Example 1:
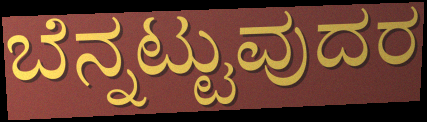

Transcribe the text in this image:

ಬೆನ್ನಟ್ಟುವುದರ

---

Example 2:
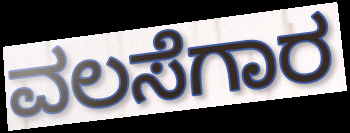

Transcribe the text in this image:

ವಲಸೆಗಾರ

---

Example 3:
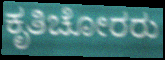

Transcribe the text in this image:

ಕೃತಿಚೋರರು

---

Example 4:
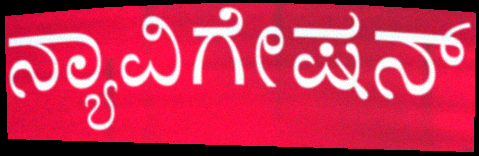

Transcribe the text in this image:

ನ್ಯಾವಿಗೇಷನ್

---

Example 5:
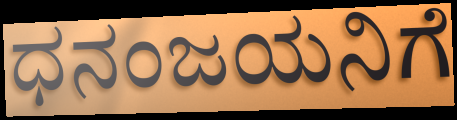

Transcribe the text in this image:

ಧನಂಜಯನಿಗೆ